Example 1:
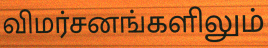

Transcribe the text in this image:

விமர்சனங்களிலும்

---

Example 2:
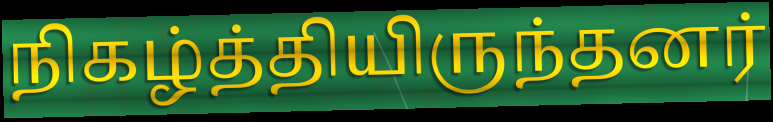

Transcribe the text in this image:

நிகழ்த்தியிருந்தனர்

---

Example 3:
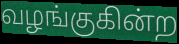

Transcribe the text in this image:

வழங்குகின்ற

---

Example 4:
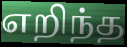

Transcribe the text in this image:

எறிந்த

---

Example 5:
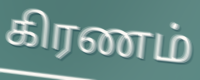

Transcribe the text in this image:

கிரணம்